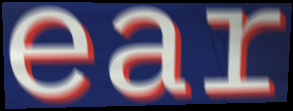
ear